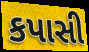
કપાસી